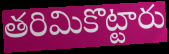
తరిమికొట్టారు